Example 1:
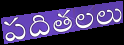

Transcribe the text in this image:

పదితలలు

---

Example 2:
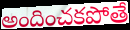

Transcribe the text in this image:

అందించకపోతే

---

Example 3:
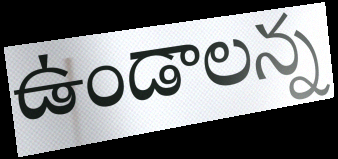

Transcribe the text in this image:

ఉండాలన్న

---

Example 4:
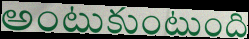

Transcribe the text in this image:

అంటుకుంటుంది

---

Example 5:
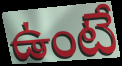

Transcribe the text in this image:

ఉంటే